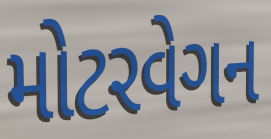
મોટરવેગન